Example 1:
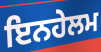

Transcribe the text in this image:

ਇਨਹੇਲਮ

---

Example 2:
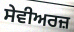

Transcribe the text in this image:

ਸੇਵੀਅਰਜ਼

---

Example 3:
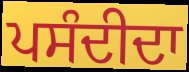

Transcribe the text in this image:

ਪਸੰਦੀਦਾ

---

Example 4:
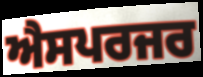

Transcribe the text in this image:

ਐਸਪਰਜਰ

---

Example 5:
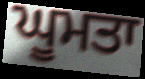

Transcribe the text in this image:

ਘੂਮਤਾ